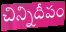
చిన్నిదీపం